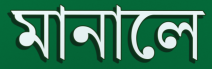
মানালে